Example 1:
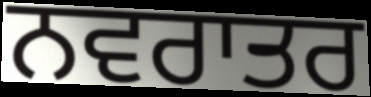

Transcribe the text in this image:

ਨਵਰਾਤਰ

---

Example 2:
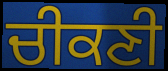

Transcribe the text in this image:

ਚੀਕਣੀ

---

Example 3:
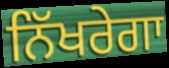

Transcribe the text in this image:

ਨਿੱਖਰੇਗਾ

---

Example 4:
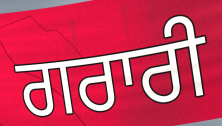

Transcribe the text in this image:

ਗਰਾਰੀ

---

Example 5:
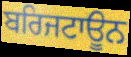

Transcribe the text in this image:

ਬਰਿਜਟਾਊਨ